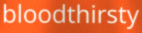
bloodthirsty